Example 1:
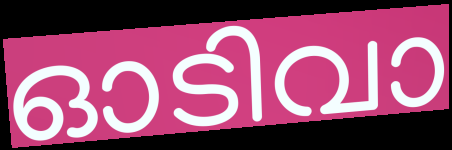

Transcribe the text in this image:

ഓടിവാ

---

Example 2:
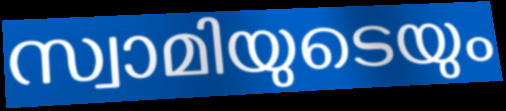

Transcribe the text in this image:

സ്വാമിയുടെയും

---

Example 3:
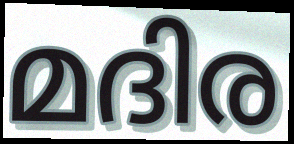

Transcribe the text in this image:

മദിര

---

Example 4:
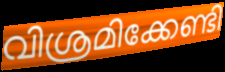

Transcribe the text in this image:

വിശ്രമിക്കേണ്ടി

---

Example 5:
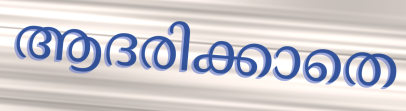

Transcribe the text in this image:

ആദരിക്കാതെ